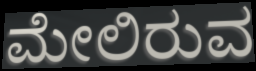
ಮೇಲಿರುವ